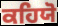
ਕਹਿਯੋ